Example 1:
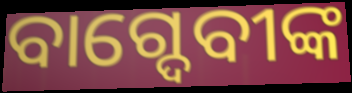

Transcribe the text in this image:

ବାଗ୍ଦେବୀଙ୍କ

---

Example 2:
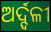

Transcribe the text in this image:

ଅର୍ଦ୍ଦଳୀ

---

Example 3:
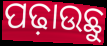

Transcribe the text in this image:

ପଢ଼ାଉଛୁ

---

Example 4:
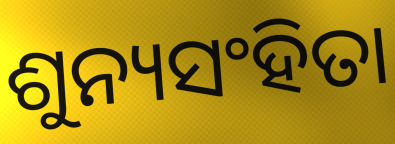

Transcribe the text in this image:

ଶୁନ୍ୟସଂହିତା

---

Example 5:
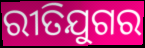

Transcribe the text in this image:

ରୀତିଯୁଗର